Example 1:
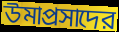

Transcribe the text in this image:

উমাপ্রসাদের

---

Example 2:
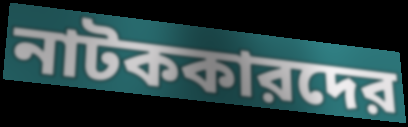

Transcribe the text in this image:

নাটককারদের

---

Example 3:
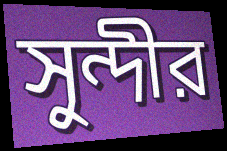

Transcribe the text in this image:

সুন্দীর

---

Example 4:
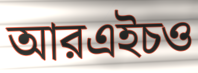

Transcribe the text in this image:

আরএইচও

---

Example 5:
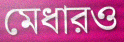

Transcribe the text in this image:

মেধারও